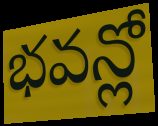
భవన్లో